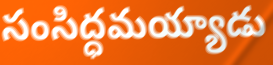
సంసిద్ధమయ్యాడు